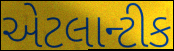
એટલાન્ટીક